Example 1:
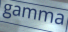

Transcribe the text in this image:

gamma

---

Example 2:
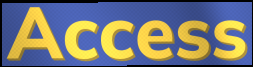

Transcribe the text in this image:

Access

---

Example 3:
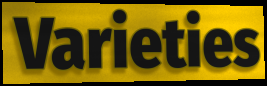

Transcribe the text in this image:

Varieties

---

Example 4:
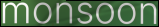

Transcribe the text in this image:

monsoon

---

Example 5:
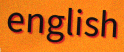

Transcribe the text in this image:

english